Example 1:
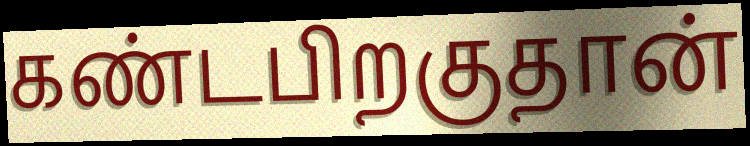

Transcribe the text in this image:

கண்டபிறகுதான்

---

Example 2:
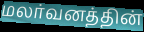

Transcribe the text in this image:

மலர்வனத்தின்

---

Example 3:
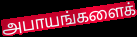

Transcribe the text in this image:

அபாயங்களைக்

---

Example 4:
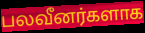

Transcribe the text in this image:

பலவீனர்களாக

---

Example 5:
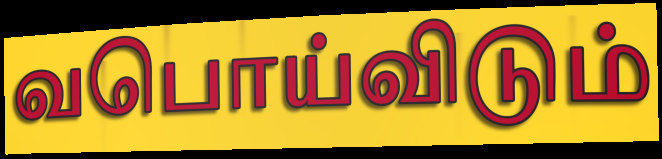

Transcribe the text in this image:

வபொய்விடும்